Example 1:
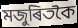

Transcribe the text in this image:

মজুৰিতকৈ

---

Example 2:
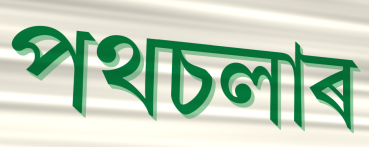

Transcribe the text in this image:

পথচলাৰ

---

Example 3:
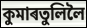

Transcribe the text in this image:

কুমাৰতুলিলৈ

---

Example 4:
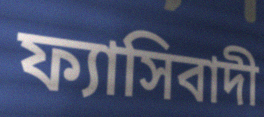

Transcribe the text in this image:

ফ্যাসিবাদী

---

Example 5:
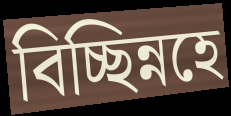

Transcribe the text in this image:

বিচ্ছিন্নহে